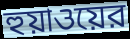
হুয়াওয়ের